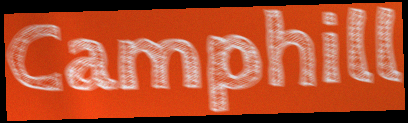
Camphill